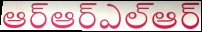
ఆర్ఆర్ఎల్ఆర్